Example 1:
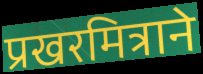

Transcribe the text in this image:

प्रखरमित्राने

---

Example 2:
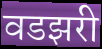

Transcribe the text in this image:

वडझरी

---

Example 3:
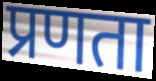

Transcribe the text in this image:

प्रणता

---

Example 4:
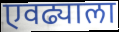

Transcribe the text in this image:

एवढ्याला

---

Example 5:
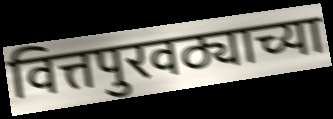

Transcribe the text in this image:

वित्तपुरवठ्याच्या